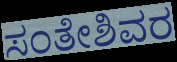
ಸಂತೇಶಿವರ